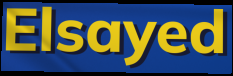
Elsayed